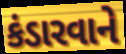
કંડારવાને